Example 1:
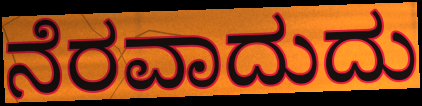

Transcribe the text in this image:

ನೆರವಾದುದು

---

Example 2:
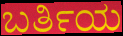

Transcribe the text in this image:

ಬರ್ತಿಯ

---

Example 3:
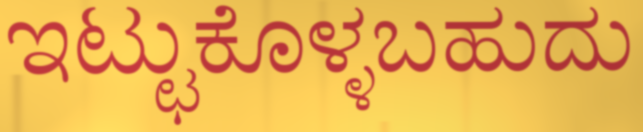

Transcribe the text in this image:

ಇಟ್ಟುಕೊಳ್ಳಬಹುದು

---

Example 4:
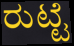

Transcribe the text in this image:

ರುಟ್ಟೆ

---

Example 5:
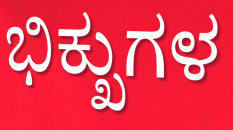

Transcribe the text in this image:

ಭಿಕ್ಖುಗಳ